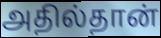
அதில்தான்